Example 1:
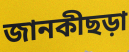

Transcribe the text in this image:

জানকীছড়া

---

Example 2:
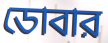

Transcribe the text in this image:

ডোবার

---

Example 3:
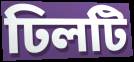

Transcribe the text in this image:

ঢিলটি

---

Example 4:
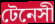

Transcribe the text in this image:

টেনেসী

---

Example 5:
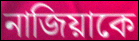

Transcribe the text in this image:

নাজিয়াকে